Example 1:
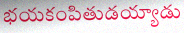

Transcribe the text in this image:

భయకంపితుడయ్యాడు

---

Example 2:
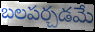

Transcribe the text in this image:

బలపర్చడమే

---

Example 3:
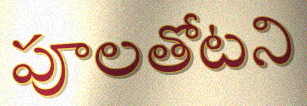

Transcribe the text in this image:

పూలతోటని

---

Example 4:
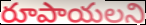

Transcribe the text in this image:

రూపాయలని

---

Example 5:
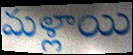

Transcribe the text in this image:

మళ్లాయి